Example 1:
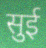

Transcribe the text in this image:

सुई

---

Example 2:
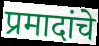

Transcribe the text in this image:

प्रमादांचे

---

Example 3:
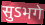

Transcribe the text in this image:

सुऽभगे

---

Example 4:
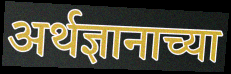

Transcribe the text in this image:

अर्थज्ञानाच्या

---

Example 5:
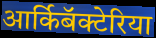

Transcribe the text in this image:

आर्किबॅक्टेरिया